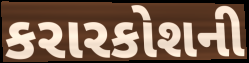
કરારકોશની